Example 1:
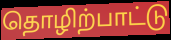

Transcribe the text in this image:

தொழிற்பாட்டு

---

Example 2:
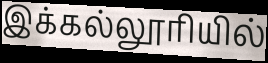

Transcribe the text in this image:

இக்கல்லூரியில்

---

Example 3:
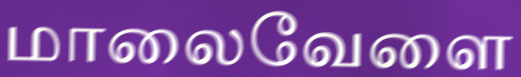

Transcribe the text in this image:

மாலைவேளை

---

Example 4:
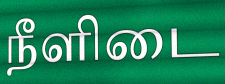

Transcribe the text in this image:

நீளிடை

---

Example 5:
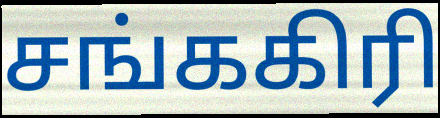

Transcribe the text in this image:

சங்ககிரி